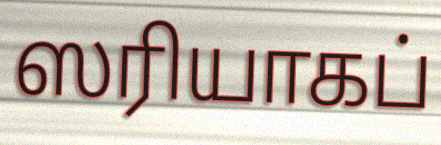
ஸரியாகப்